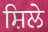
ਸ਼ਿਲੇ